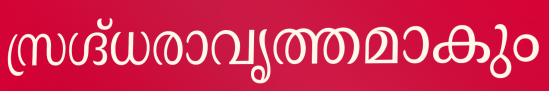
സ്രഗ്ദ്ധരാവൃത്തമാകും